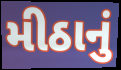
મીઠાનું